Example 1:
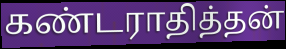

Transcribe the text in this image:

கண்டராதித்தன்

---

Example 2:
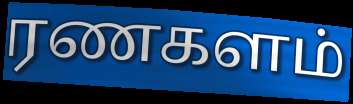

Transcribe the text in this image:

ரணகளம்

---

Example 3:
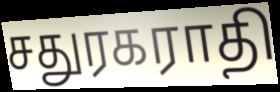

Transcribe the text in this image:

சதுரகராதி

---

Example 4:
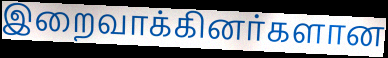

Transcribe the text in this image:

இறைவாக்கினர்களான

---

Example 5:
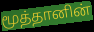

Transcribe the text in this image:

மூத்தானின்